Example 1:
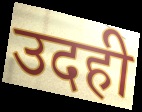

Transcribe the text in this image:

उदही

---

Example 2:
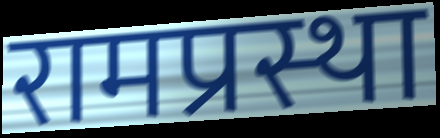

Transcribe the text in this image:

रामप्रस्था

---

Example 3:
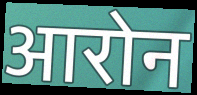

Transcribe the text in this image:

आरोन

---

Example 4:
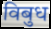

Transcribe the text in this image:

विबुध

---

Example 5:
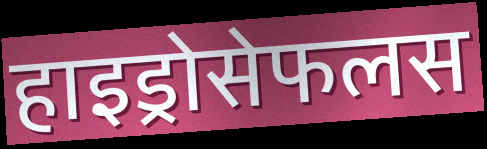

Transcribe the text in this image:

हाइड्रोसेफलस